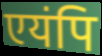
एयंपि